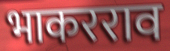
भाकरराव